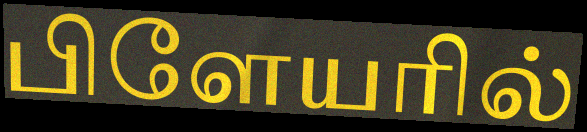
பிளேயரில்